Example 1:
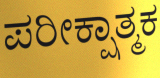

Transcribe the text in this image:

ಪರೀಕ್ಷಾತ್ಮಕ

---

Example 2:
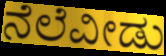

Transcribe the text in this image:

ನೆಲೆವೀಡು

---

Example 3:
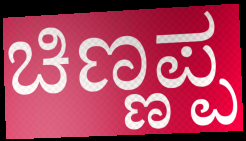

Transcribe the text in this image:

ಚಿಣ್ಣಪ್ಪ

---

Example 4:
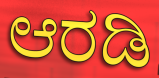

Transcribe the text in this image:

ಆರಡಿ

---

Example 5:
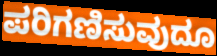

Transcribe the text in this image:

ಪರಿಗಣಿಸುವುದೂ